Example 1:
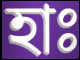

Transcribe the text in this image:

হাঃ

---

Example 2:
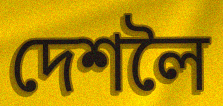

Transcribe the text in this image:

দেশলৈ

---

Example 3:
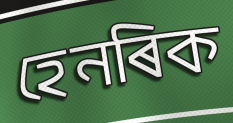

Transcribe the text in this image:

হেনৰিক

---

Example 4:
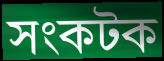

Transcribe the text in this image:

সংকটক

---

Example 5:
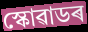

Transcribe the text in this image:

স্কোৱাডৰ